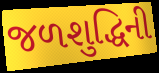
જળશુદ્ધિની